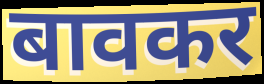
बावकर